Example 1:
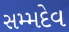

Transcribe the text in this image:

સમ્મદેવ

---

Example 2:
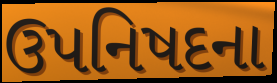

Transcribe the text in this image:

ઉપનિષદના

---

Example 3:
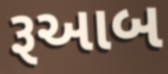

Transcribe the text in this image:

રૂઆબ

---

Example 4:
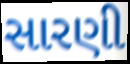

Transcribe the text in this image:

સારણી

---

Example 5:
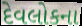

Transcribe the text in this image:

દેવલોકના